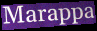
Marappa